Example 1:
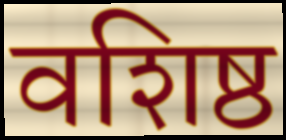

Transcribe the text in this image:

वशिष्ठ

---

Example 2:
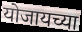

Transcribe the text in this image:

योजायच्या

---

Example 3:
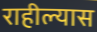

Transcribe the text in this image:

राहील्यास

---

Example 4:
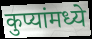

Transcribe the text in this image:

कुप्यांमध्ये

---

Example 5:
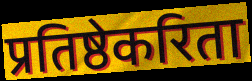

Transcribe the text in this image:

प्रतिष्ठेकरिता